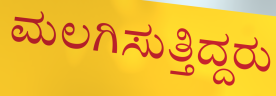
ಮಲಗಿಸುತ್ತಿದ್ದರು